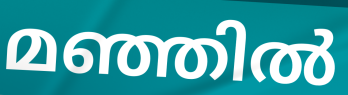
മഞ്ഞിൽ